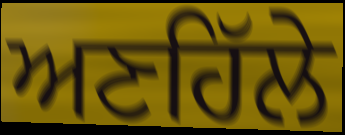
ਅਣਹਿੱਲੇ